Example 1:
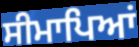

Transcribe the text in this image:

ਸੀਮਾਪਿਆਂ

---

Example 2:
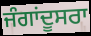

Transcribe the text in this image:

ਜੰਗਾਂਦੂਸਰਾ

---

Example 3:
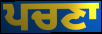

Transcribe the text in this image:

ਪਚਣਾ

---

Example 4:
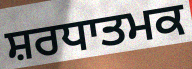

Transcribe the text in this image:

ਸ਼ਰਧਾਤਮਕ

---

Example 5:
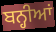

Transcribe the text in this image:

ਬਨ੍ਹੀਆਂ